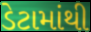
ડેટામાંથી